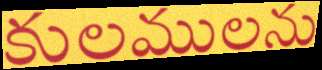
కులములను